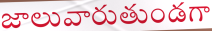
జాలువారుతుండగా